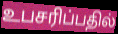
உபசரிப்பதில்